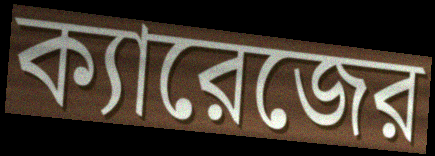
ক্যারেজের